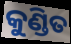
କୁଣ୍ଡିତ